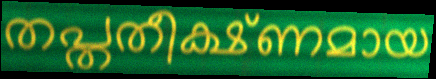
തപ്തതീക്ഷ്ണമായ